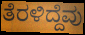
ತೆರಳಿದ್ದೆವು